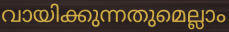
വായിക്കുന്നതുമെല്ലാം